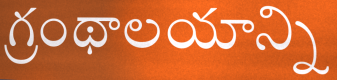
గ్రంథాలయాన్ని